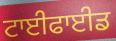
ਟਾਈਫਾਈਡ